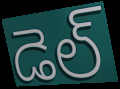
డెల్